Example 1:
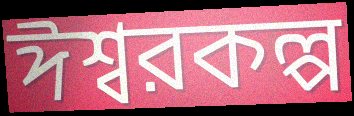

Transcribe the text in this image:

ঈশ্বরকল্প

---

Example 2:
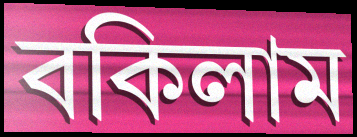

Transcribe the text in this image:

বকিলাম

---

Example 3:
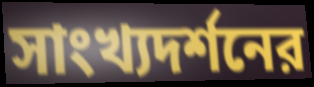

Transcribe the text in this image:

সাংখ্যদর্শনের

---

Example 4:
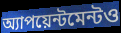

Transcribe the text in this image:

অ্যাপয়েন্টমেন্টও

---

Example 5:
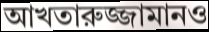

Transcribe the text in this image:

আখতারুজ্জামানও